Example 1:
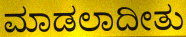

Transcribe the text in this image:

ಮಾಡಲಾದೀತು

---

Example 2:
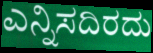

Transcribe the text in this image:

ಎನ್ನಿಸದಿರದು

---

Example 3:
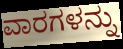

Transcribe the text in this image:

ವಾರಗಳನ್ನು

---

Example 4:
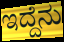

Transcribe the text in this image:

ಇದ್ದೆನು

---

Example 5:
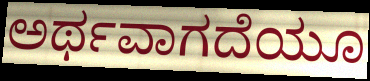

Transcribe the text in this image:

ಅರ್ಥವಾಗದೆಯೂ